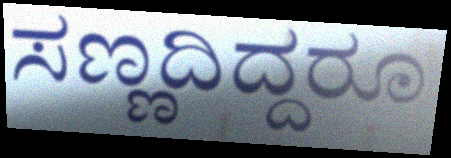
ಸಣ್ಣದಿದ್ದರೂ